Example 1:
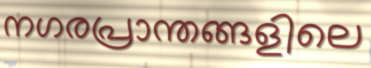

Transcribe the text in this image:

നഗരപ്രാന്തങ്ങളിലെ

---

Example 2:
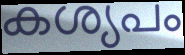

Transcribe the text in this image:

കശ്യപം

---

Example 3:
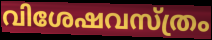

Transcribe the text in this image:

വിശേഷവസ്ത്രം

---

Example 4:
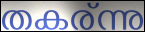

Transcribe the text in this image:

തകര്ന്നു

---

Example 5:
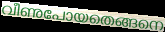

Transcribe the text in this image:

വീണുപോയതെങ്ങനെ